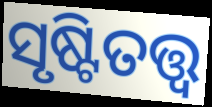
ସୃଷ୍ଟିତତ୍ତ୍ୱ